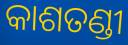
କାଶତଣ୍ଡୀ